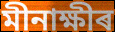
মীনাক্ষীৰ